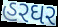
હરઘર